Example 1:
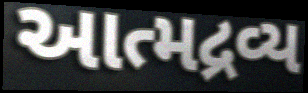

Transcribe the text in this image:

આત્મદ્રવ્ય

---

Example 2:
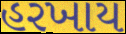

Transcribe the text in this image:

હરખાય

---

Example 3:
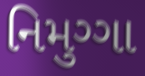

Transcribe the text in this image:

નિમુગ્ગા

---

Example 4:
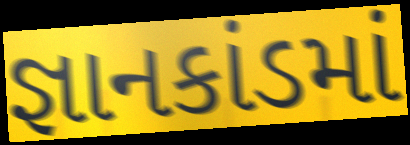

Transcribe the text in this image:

જ્ઞાનકાંડમાં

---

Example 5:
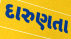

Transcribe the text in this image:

દારુણતા